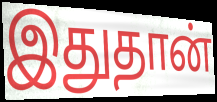
இதுதான்